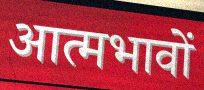
आत्मभावों